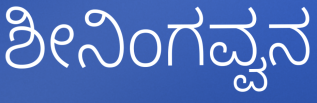
ಶೀನಿಂಗವ್ವನ